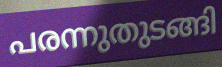
പരന്നുതുടങ്ങി